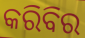
କରିବିର